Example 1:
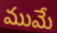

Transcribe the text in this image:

ముమే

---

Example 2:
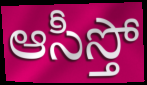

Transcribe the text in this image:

ఆసీస్తో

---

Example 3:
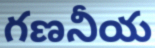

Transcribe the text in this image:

గణనీయ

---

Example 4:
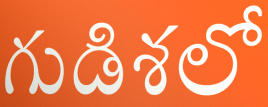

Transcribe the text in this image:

గుడిశలో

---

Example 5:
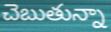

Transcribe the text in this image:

చెబుతున్నా